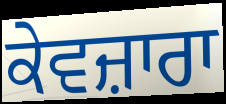
ਕੇਵਜ਼ਾਰਾ